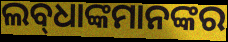
ଲବ୍‌ଧାଙ୍କମାନଙ୍କର